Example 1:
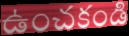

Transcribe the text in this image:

ఉంచకండి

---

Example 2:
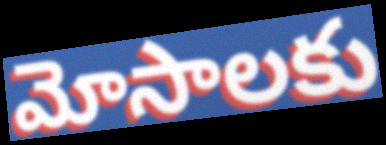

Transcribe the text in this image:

మోసాలకు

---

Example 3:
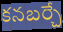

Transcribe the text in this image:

కనబర్చే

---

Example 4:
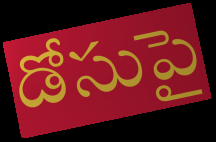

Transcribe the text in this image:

డోసుపై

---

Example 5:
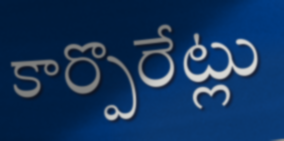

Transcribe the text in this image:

కార్పొరేట్లు